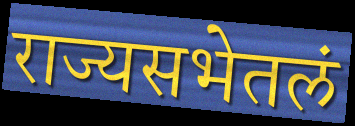
राज्यसभेतलं